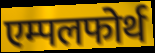
एम्पलफोर्थ